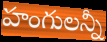
హంగులన్నీ